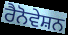
ਰੈਨੋਵੇਸ਼ਨ